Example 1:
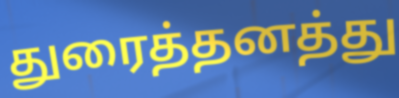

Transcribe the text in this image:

துரைத்தனத்து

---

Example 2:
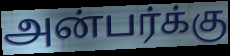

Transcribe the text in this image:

அன்பர்க்கு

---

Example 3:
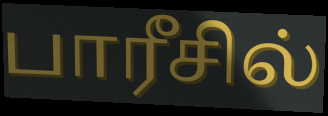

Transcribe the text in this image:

பாரீசில்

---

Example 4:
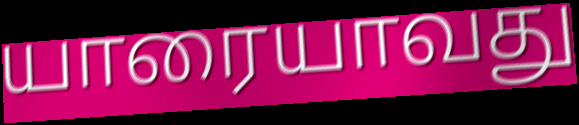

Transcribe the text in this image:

யாரையாவது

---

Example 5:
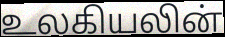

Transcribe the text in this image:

உலகியலின்